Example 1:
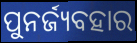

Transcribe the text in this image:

ପୁନର୍ଜ୍ୟବହାର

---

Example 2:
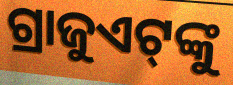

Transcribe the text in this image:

ଗ୍ରାଜୁଏଟ୍‌ଙ୍କୁ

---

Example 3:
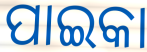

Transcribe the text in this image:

ପାଇକା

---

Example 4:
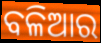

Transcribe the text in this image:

ବଳିଆର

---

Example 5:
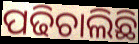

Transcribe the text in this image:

ପଢିଚାଲିଛି